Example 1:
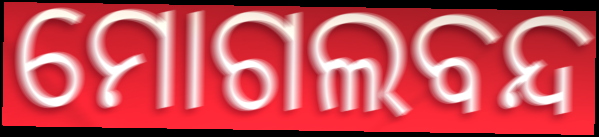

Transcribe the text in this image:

ମୋଗଲବନ୍ଦ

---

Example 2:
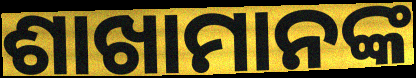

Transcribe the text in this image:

ଶାଖାମାନଙ୍କ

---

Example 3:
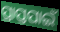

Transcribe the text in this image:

ପ୍ରାପ୍ତପାଇଁ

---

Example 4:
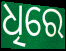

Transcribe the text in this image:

ଧିରେ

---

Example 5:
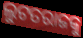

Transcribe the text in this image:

ଲୁଟତରାଜକୁ